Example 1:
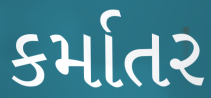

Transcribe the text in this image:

કર્માતર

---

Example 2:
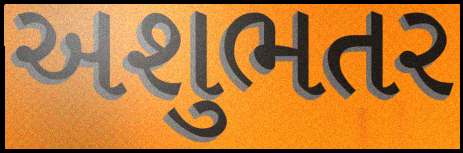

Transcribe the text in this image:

અશુભતર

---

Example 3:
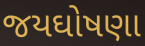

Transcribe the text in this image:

જયઘોષણા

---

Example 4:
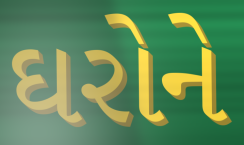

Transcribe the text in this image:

ઘરોને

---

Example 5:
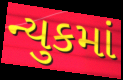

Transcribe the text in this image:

ન્યુકમાં